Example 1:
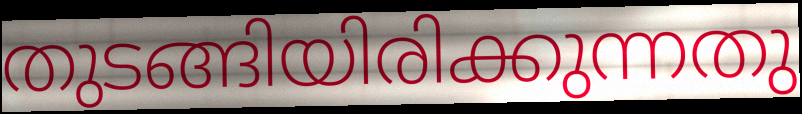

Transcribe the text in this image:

തുടങ്ങിയിരിക്കുന്നതു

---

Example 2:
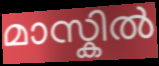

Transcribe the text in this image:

മാസ്കിൽ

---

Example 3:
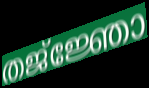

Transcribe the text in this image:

തജ്ജ്ഞോ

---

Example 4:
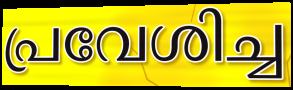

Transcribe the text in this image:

പ്രവേശിച്ച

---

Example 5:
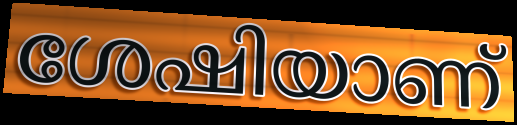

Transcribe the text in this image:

ശേഷിയാണ്